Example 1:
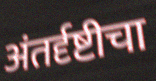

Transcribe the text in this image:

अंतर्दृष्टीचा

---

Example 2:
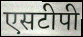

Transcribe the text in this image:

एसटीपी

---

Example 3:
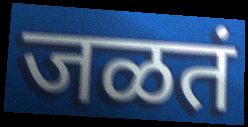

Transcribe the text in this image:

जळतं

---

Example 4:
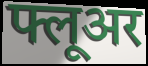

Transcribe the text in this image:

फ्लूअर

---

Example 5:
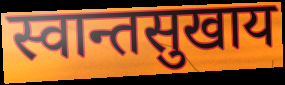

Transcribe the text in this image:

स्वान्तसुखाय